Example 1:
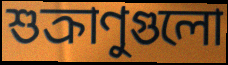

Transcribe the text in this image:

শুক্রাণুগুলো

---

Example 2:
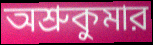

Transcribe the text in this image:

অশ্রুকুমার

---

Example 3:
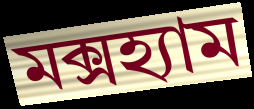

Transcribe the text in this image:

মক্সহ্যাম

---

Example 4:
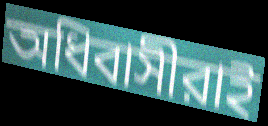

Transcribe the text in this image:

অধিবাসীরাই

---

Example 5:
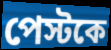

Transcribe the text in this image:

পেস্টকে